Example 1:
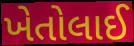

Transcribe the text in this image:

ખેતોલાઈ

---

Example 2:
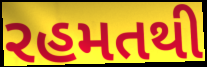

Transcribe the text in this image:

રહમતથી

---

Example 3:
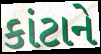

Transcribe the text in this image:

કાંટાને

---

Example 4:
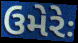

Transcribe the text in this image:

ઉમેરેઃ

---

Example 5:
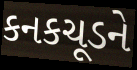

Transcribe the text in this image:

કનકચૂડને